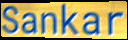
Sankar